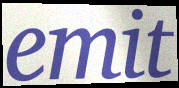
emit